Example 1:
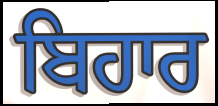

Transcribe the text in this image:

ਬਿਹਾਰ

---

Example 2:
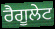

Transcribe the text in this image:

ਰੈਗੂਲੇਟ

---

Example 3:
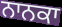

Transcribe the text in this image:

ਨਾਨਕਾ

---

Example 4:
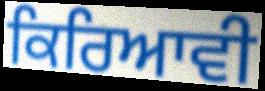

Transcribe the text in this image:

ਕਿਰਿਆਵੀ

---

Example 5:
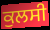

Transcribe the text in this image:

ਕੁਲਸੀ